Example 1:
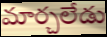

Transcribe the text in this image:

మార్చలేడు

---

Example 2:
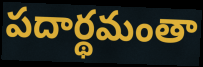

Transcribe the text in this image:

పదార్థమంతా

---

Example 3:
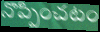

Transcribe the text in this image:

నొప్పించటం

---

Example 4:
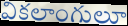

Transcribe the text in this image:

వికలాంగులూ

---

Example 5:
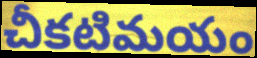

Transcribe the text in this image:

చీకటిమయం